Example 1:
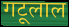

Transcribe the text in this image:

गटूलाल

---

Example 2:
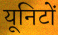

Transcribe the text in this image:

यूनिटों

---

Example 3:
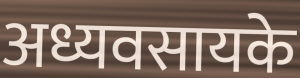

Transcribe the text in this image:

अध्यवसायके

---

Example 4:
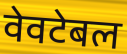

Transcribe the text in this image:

वेवटेबल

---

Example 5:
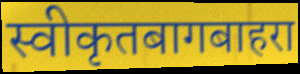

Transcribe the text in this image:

स्वीकृतबागबाहरा